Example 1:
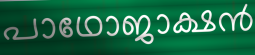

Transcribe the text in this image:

പാഥോജാക്ഷൻ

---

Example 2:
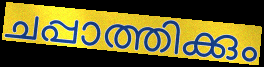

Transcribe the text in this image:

ചപ്പാത്തിക്കും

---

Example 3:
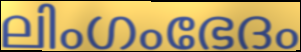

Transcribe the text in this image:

ലിംഗംഭേദം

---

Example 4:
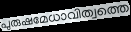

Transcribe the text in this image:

പുരുഷമേധാവിത്വത്തെ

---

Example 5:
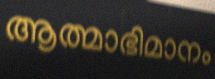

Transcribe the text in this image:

ആത്മാഭിമാനം